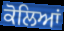
ਕੋਲਿਆਂ